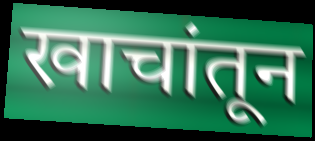
खाचांतून